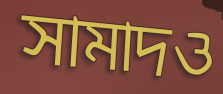
সামাদও